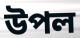
উপল